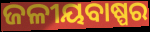
ଜଳୀୟବାଷ୍ପର